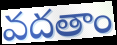
వదతాం